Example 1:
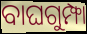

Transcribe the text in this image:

ବାଘଗୁମ୍ଫା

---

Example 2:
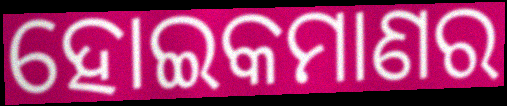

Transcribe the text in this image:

ହୋଇକମାଣର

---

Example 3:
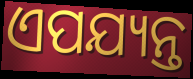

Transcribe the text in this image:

ଏପଯ୍ୟନ୍ତ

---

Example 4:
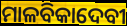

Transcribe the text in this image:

ମାଳବିକାଦେବୀ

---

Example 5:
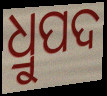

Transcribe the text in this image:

ଧ୍ରୁପଦ